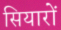
सियारों